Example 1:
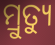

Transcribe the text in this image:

ମ୍ରୁତ୍ୟୁ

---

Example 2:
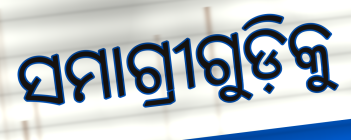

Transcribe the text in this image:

ସମାଗ୍ରୀଗୁଡ଼ିକୁ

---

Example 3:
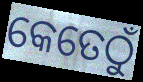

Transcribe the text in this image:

କେତେଠୁଁ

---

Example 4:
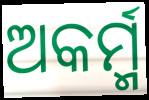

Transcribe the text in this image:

ଅକର୍ମ୍ମ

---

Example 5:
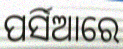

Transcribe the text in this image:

ପର୍ସିଆରେ